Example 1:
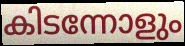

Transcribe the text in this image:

കിടന്നോളും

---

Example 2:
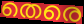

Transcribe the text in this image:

തെരെ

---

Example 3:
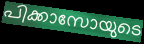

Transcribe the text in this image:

പിക്കാസോയുടെ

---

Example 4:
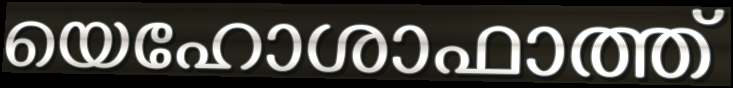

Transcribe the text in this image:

യെഹോശാഫാത്ത്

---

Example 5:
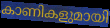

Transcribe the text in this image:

കാണികളുമായി